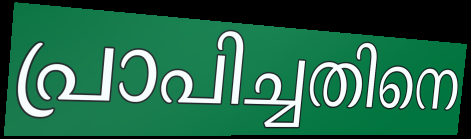
പ്രാപിച്ചതിനെ